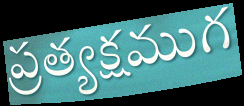
ప్రత్యక్షముగ